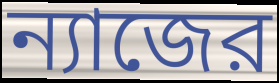
ন্যাজের